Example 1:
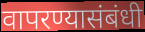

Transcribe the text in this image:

वापरण्यासंबंधी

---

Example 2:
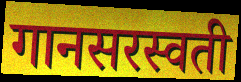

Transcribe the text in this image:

गानसरस्वती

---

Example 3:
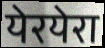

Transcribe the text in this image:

येरयेरा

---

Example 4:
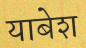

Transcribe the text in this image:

याबेश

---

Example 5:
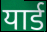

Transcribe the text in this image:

यार्ड